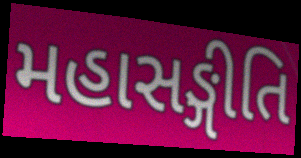
મહાસઙ્ગીતિ